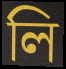
লি